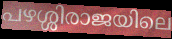
പഴശ്ശിരാജയിലെ